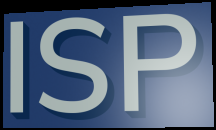
ISP